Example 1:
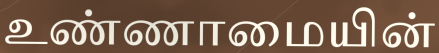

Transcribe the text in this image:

உண்ணாமையின்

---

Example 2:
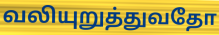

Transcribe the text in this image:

வலியுறுத்துவதோ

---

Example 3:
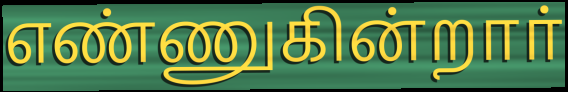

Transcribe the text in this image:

எண்ணுகின்றார்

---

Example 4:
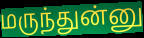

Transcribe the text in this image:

மருந்துன்னு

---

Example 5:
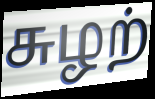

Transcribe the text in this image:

சுழற்